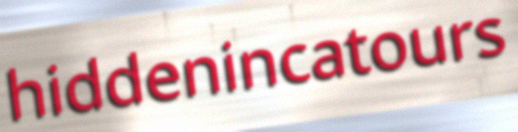
hiddenincatours